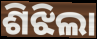
ଶିଝିଲା